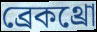
ব্রেকথ্রো